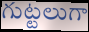
గుట్టలుగా